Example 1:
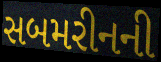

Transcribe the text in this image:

સબમરીનની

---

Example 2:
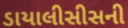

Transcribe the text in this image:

ડાયાલીસીસની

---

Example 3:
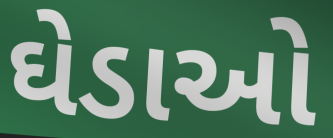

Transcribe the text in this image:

ઘેડાઓ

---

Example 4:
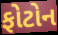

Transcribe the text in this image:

ફોટોન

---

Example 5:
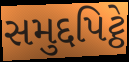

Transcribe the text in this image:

સમુદ્દપિટ્ઠે